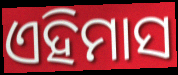
ଏହିମାସ